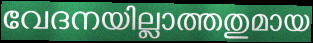
വേദനയില്ലാത്തതുമായ